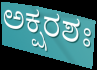
ಅಕ್ಷರಶಃ